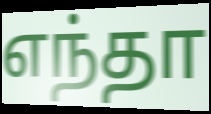
எந்தா